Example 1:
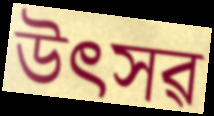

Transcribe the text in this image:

উৎসৱ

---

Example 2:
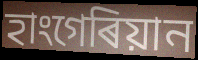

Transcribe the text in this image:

হাংগেৰিয়ান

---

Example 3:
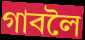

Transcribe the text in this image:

গাবলৈ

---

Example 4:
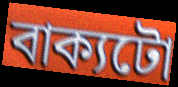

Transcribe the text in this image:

বাক্যটো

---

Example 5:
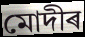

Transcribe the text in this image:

মোদীৰ